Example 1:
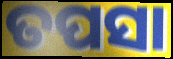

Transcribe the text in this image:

ତପସା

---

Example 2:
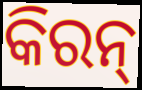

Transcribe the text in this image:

କିରନ୍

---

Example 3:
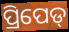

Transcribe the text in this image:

ପ୍ରିପେଡ୍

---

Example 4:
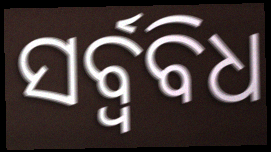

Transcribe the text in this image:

ସର୍ବ୍ବବିଧ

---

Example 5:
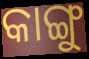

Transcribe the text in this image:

କାଙ୍ଗୁ